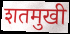
शतमुखी